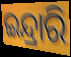
ଇନ୍ଦ୍ରାରି